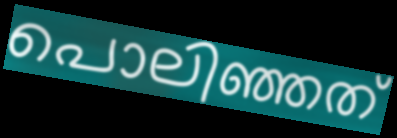
പൊലിഞ്ഞത്